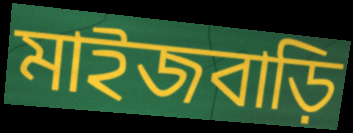
মাইজবাড়ি